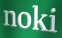
noki